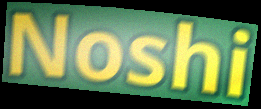
Noshi